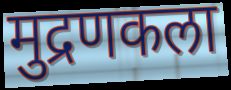
मुद्रणकला